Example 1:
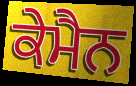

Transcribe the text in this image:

ਕੇਮੈਨ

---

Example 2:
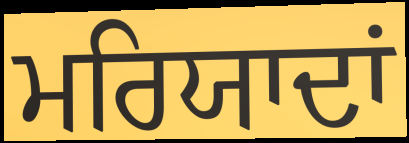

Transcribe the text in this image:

ਮਰਿਯਾਦਾਂ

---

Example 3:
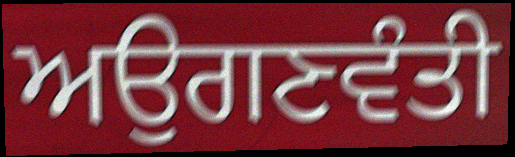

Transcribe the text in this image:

ਅਉਗਣਵੰਤੀ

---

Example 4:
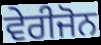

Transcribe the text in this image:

ਵੇਰੀਜੋਨ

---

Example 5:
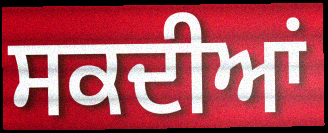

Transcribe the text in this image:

ਸਕਦੀਆਂ